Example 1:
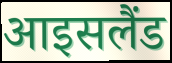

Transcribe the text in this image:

आइसलैंड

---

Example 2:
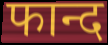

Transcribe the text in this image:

फान्द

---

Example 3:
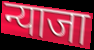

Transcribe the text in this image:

न्याजा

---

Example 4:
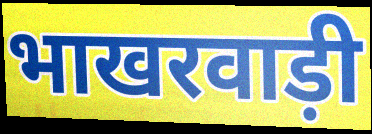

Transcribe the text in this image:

भाखरवाड़ी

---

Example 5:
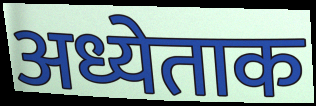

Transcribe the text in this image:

अध्येताक